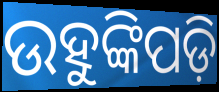
ଉହୁଙ୍କିପଡ଼ି